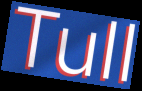
Tull